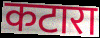
कटारा